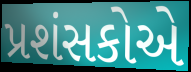
પ્રશંસકોએ